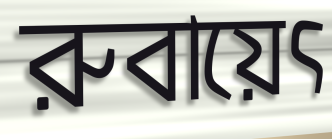
রুবায়েৎ